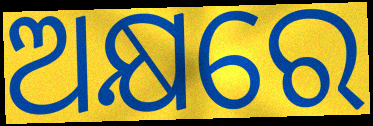
ଅକ୍ଷରେ